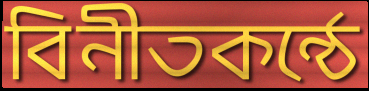
বিনীতকন্ঠে